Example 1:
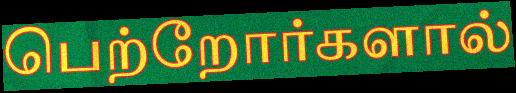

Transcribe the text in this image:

பெற்றோர்களால்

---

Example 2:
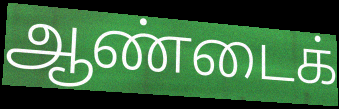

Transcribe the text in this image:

ஆண்டைக்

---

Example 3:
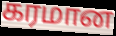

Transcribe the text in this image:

கரமான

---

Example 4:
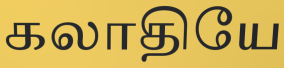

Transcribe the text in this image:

கலாதியே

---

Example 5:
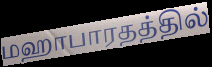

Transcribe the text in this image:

மஹாபாரதத்தில்